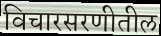
विचारसरणीतील